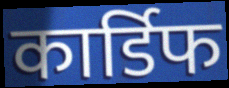
कार्डिफ